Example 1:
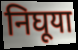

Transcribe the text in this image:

निघूया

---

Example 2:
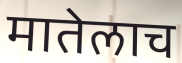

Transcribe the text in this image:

मातेलाच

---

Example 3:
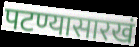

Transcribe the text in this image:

पटण्यासारखं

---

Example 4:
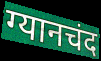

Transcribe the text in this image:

ग्यानचंद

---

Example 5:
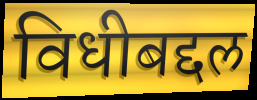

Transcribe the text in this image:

विधीबद्दल